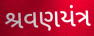
શ્રવણયંત્ર